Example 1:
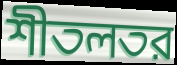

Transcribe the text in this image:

শীতলতর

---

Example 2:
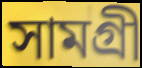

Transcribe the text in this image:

সামগ্রী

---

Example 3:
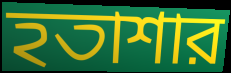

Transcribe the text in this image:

হতাশার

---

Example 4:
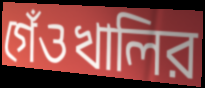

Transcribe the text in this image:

গেঁওখালির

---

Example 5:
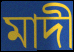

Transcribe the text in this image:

মাদী